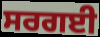
ਸਰਗਈ